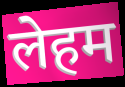
लेहम